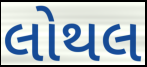
લોથલ